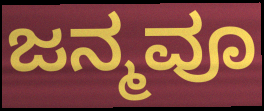
ಜನ್ಮವೂ